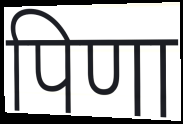
पिणा